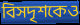
বিসদৃশকেও